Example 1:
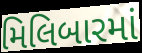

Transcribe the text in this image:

મિલિબારમાં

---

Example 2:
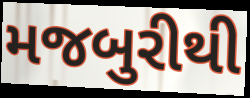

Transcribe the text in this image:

મજબુરીથી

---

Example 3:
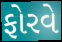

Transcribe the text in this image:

ફોરવે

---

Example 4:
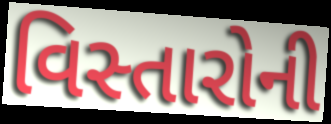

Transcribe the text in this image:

વિસ્તારોની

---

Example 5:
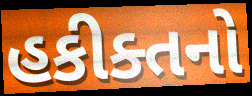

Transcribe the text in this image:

હકીક્તનો